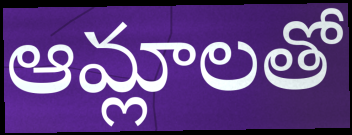
ఆమ్లాలతో